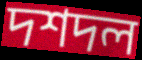
দশদল